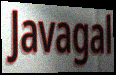
Javagal